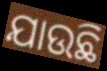
ଯାଉଛି